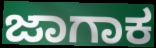
ಜಾಗಾಕ